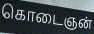
கொடைஞன்